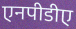
एनपीडीए